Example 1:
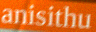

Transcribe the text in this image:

anisithu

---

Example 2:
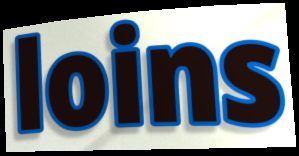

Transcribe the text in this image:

loins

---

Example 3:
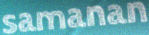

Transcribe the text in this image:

samanan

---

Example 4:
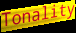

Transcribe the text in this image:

Tonality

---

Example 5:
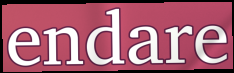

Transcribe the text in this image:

endare